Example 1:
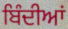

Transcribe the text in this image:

ਬਿੰਦੀਆਂ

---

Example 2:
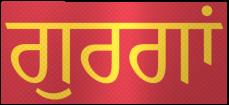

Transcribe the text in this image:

ਗੁਰਗਾਂ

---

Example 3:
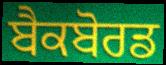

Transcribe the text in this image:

ਬੈਕਬੋਰਡ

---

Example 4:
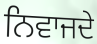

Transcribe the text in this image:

ਨਿਵਾਜਦੇ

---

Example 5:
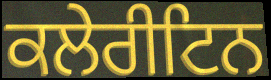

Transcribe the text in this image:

ਕਲੇਰੀਟਿਨ